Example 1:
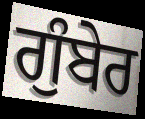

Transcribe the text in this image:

ਗੁੰਬੇਰ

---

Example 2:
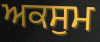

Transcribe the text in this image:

ਅਕਸੁਮ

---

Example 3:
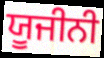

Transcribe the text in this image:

ਯੂਜੀਨੀ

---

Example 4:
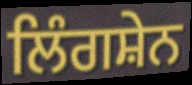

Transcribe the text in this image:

ਲਿੰਗਸ਼ੇਨ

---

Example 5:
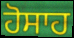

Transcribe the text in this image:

ਹੋਸਾਹ